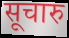
सूचारु